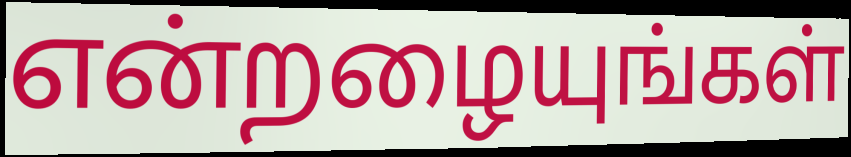
என்றழையுங்கள்